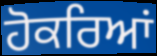
ਹੋਕਰਿਆਂ